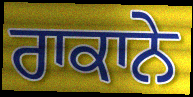
ਰਾਕਾਨੇ